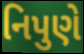
નિપુણે